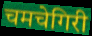
चमचेगिरी